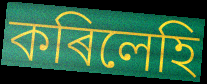
কৰিলেহি